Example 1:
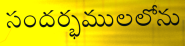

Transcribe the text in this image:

సందర్భములలోను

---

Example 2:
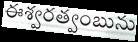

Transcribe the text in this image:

ఈశ్వరత్వంబును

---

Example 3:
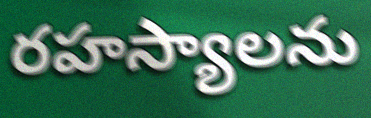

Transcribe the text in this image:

రహస్యాలను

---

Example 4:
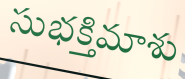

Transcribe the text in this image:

సుభక్తిమాశు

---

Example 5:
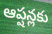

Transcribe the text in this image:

ఆప్షన్లకు